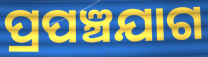
ପ୍ରପଞ୍ଚଯାଗ